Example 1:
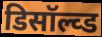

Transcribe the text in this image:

डिसॉल्व्ड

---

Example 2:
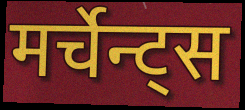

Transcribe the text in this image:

मर्चेन्ट्स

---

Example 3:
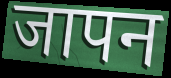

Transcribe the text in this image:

जापन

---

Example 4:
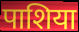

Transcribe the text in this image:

पाशिया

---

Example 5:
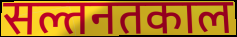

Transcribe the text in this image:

सल्तनतकाल